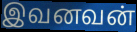
இவனவன்